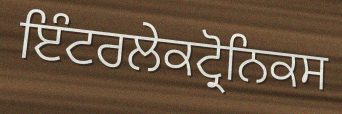
ਇੰਟਰਲੇਕਟ੍ਰੋਨਿਕਸ